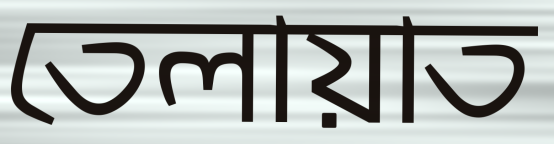
তেলায়াত